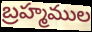
బ్రహ్మముల